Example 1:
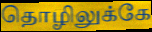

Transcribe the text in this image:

தொழிலுக்கே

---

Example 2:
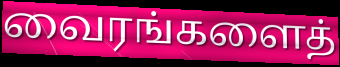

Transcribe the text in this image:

வைரங்களைத்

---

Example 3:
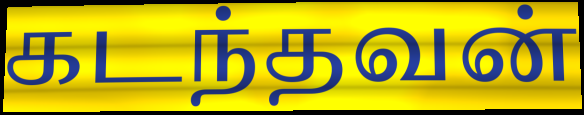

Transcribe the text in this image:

கடந்தவன்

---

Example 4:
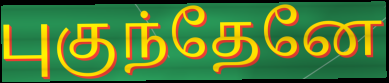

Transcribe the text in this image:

புகுந்தேனே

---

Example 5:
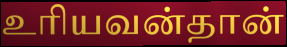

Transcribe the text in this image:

உரியவன்தான்